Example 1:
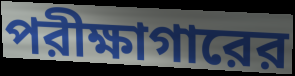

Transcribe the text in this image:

পরীক্ষাগারের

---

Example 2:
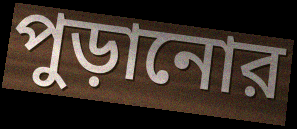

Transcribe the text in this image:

পুড়ানোর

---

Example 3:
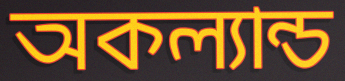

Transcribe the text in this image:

অকল্যান্ড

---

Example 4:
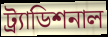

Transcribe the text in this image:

ট্র্যাডিশনাল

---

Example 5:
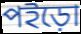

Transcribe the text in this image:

পইড়ো